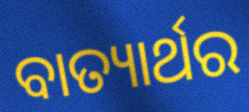
ବାତ୍ୟାର୍ଥର